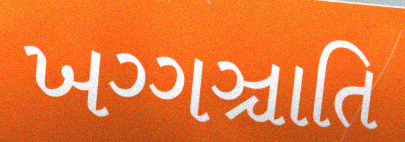
ખગ્ગઞ્ચાતિ